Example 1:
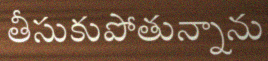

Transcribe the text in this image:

తీసుకుపోతున్నాను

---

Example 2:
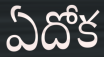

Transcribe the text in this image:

ఏదోక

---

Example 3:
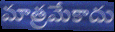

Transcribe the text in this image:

మాత్రమేకాదు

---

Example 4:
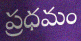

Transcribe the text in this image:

ప్రధమం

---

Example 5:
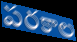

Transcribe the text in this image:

పరకాల